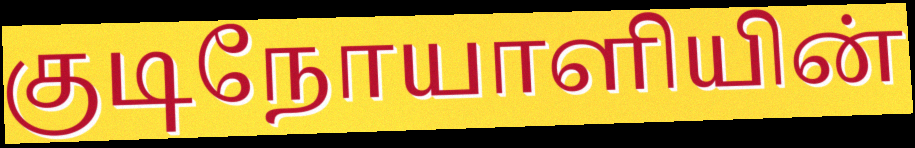
குடிநோயாளியின்